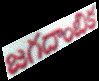
జగదాంబిక